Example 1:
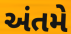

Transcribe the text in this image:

અંતમે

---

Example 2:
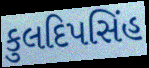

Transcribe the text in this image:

કુલદિપસિંહ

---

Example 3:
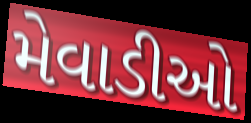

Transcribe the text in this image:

મેવાડીઓ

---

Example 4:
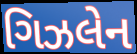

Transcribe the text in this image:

ગિઝલેન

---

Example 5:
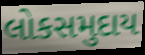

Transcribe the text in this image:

લોકસમુદાય